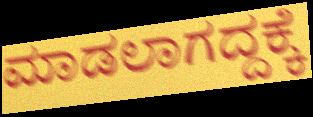
ಮಾಡಲಾಗದ್ದಕ್ಕೆ